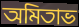
অমিতাভ